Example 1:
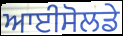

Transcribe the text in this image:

ਆਈਸੋਲਡੇ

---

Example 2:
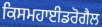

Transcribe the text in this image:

ਕਿਸਮਹਾਈਡਰੋਗੈਲ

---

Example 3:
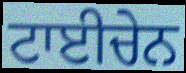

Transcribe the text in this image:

ਟਾਈਚੇਨ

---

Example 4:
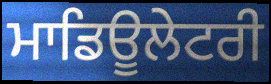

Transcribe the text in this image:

ਮਾਡਿਊਲੇਟਰੀ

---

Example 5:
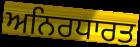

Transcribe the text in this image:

ਅਨਿਰਧਾਰਤ